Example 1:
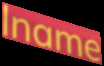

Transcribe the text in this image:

lname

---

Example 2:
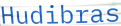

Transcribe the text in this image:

Hudibras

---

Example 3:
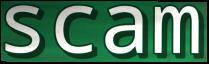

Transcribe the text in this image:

scam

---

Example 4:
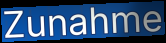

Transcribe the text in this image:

Zunahme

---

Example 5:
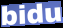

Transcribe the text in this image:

bidu